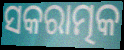
ସକରାତ୍ମକ